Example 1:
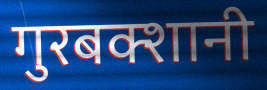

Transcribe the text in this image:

गुरबक्शानी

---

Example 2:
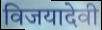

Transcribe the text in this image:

विजयादेवी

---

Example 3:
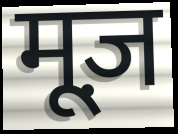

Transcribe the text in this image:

मूज़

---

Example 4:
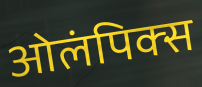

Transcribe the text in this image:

ओलंपिक्‍स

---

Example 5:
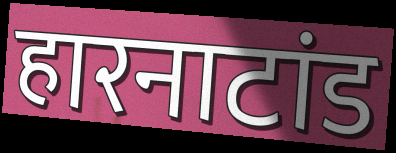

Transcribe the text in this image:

हारनाटांड